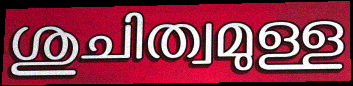
ശുചിത്വമുള്ള